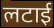
लटाई